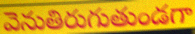
వెనుతిరుగుతుండగా